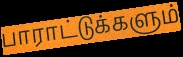
பாராட்டுக்களும்